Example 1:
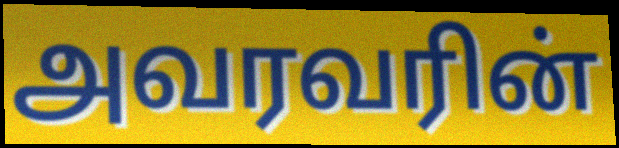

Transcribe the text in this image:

அவரவரின்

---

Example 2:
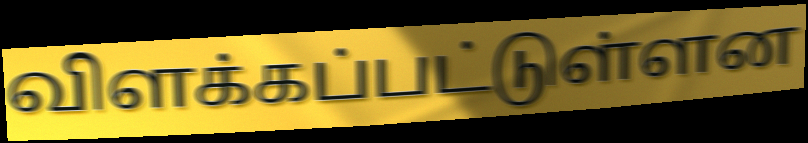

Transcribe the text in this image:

விளக்கப்பட்டுள்ளன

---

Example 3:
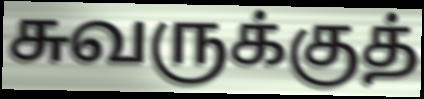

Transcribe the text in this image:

சுவருக்குத்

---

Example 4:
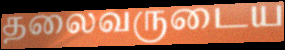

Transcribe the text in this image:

தலைவருடைய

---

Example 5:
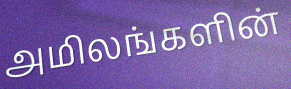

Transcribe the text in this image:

அமிலங்களின்